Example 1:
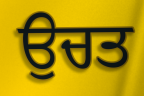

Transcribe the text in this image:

ਉਚਤ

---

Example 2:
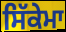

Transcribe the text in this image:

ਸਿੱਕੇਮਾ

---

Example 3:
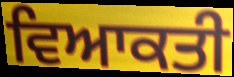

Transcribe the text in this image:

ਵਿਆਕਤੀ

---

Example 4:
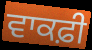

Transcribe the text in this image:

ਵਾਕਫ਼ੀ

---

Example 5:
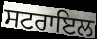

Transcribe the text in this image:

ਸਟਰਾਇਲ